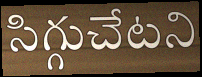
సిగ్గుచేటని